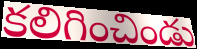
కలిగించిండు